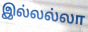
இல்லல்லா